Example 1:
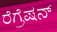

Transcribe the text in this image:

ರೆಗ್ರೆಷನ್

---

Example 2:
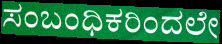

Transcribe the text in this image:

ಸಂಬಂಧಿಕರಿಂದಲೇ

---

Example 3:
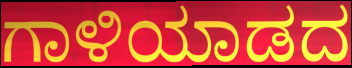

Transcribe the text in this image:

ಗಾಳಿಯಾಡದ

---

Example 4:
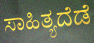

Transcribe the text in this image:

ಸಾಹಿತ್ಯದೆಡೆ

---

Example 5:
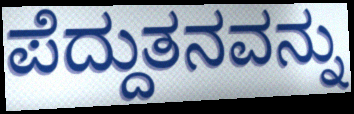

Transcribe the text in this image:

ಪೆದ್ದುತನವನ್ನು